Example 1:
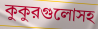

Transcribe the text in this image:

কুকুরগুলোসহ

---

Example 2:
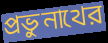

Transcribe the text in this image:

প্রভুনাথের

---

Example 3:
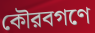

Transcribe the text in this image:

কৌরবগণে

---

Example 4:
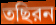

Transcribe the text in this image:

তছিরন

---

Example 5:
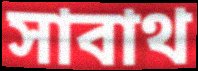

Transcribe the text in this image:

সাবাথ